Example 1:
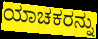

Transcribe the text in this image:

ಯಾಚಕರನ್ನು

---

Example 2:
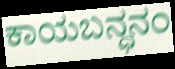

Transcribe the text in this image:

ಕಾಯಬನ್ಧನಂ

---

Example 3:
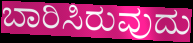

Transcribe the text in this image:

ಬಾರಿಸಿರುವುದು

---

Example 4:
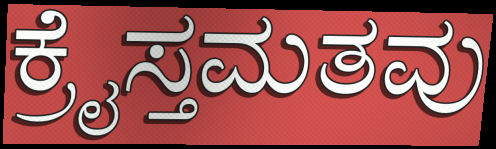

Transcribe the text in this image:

ಕ್ರೈಸ್ತಮತವು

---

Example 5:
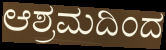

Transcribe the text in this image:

ಆಶ್ರಮದಿಂದ